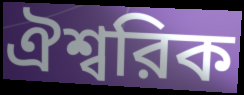
ঐশ্বরিক